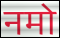
नमो